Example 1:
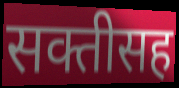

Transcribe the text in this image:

सक्तीसह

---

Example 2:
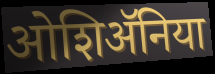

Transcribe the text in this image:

ओशिॲनिया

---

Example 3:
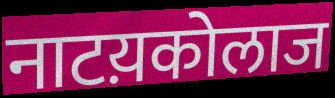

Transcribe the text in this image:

नाटय़कोलाज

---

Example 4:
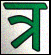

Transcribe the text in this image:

त्र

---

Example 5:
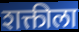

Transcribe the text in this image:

शक्तीला